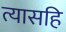
त्यासहि